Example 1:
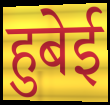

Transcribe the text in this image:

हुबेई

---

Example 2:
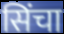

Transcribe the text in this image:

सिंचा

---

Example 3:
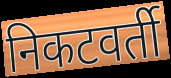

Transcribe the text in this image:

निकटवर्ती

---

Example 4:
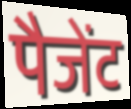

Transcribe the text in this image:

पैजेंट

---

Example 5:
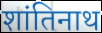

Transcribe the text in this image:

शांतिनाथ